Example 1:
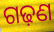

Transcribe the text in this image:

ଗଢ଼ଣ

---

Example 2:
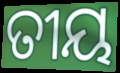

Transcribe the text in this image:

ତୀୟ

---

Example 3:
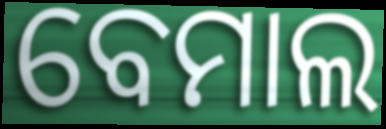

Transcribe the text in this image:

ବେମାଲ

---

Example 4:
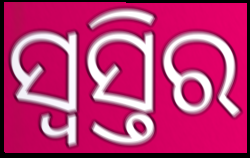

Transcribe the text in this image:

ସ୍ଵସ୍ତିର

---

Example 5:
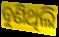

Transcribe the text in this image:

ବୁଣିଥିଲି